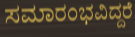
ಸಮಾರಂಭವಿದ್ದರೆ